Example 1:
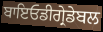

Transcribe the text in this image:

ਬਾਇਓਡੀਗ੍ਰੇਡੇਬਲ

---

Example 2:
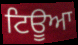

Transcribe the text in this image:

ਟਿਊਆ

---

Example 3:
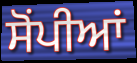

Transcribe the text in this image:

ਸੋਂਪੀਆਂ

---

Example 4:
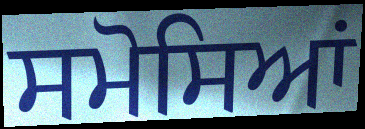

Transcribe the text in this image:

ਸਮੋਸਿਆਂ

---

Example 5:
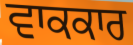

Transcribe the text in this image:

ਵਾਕਕਾਰ